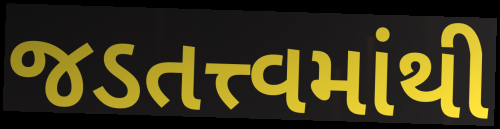
જડતત્ત્વમાંથી